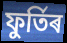
ফুৰ্তিৰ